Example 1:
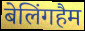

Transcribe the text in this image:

बेलिंगहैम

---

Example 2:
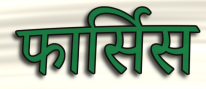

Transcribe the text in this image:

फार्सिस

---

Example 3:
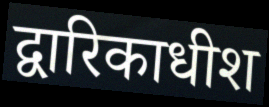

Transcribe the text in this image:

द्वारिकाधीश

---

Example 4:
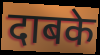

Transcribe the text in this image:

दाबके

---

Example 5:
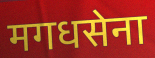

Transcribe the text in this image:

मगधसेना